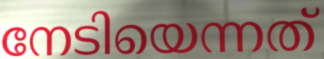
നേടിയെന്നത്